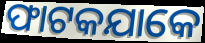
ଫାଟକଯାକେ